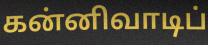
கன்னிவாடிப்